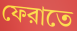
ফেরাতে